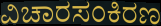
ವಿಚಾರಸಂಕಿರಣ